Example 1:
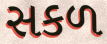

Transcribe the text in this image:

સકળ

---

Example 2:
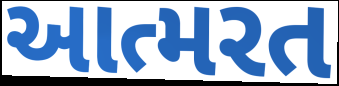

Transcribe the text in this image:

આત્મરત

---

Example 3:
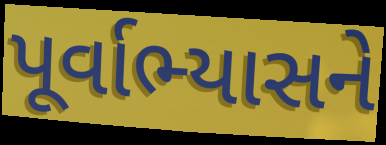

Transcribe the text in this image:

પૂર્વાભ્યાસને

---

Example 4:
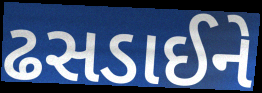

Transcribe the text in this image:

ઢસડાઈને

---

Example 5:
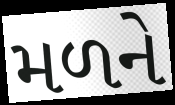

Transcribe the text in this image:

મળને